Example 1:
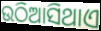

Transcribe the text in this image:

ଉଠିଆସିଥାଏ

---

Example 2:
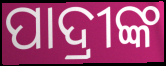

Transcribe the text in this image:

ପାଦ୍ରୀଙ୍କ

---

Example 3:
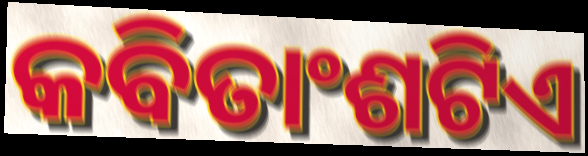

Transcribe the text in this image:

କବିତାଂଶଟିଏ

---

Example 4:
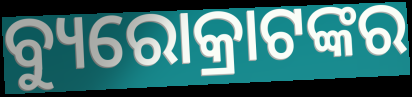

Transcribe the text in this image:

ବ୍ୟୁରୋକ୍ରାଟଙ୍କର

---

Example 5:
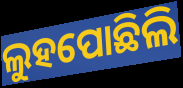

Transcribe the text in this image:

ଲୁହପୋଛିଲି